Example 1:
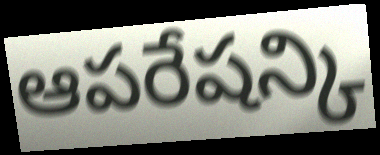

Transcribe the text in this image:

ఆపరేషన్కి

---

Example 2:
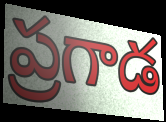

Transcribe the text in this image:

ప్రగాడ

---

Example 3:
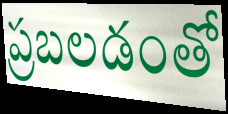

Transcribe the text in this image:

ప్రబలడంతో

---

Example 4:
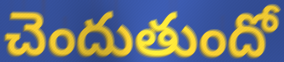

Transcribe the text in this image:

చెందుతుందో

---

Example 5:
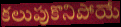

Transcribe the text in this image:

కలుపుకొనిపోయే